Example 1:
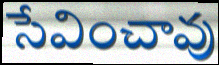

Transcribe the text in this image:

సేవించావు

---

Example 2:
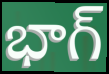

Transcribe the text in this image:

భాగ్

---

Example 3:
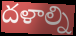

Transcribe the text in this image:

దళాల్ని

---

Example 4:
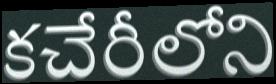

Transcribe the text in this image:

కచేరీలోని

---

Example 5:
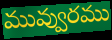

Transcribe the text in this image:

మువ్వురము